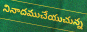
నినాదముచేయుచున్న